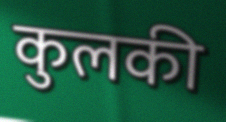
कुलकी